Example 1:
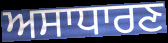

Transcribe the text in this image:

ਅਸਾਧਾਰਣ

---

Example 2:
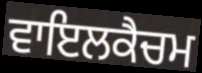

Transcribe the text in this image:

ਵਾਇਲਕੈਚਮ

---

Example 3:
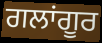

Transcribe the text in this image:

ਗਲਾਂਗੂਰ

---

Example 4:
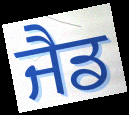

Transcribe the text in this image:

ਜੈਡ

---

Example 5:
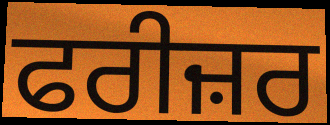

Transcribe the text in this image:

ਫਰੀਜ਼ਰ